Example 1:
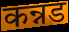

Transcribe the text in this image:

कन्नड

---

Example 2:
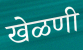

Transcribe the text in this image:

खेळणी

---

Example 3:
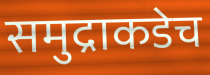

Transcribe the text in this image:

समुद्राकडेच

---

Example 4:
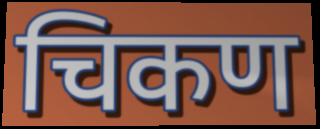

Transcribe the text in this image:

चिकण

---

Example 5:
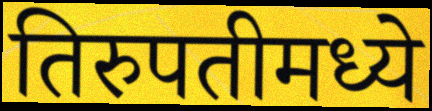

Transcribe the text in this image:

तिरुपतीमध्ये